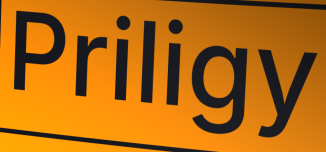
Priligy